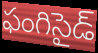
ఫంగిసైడ్